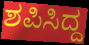
ಶಪಿಸಿದ್ದ